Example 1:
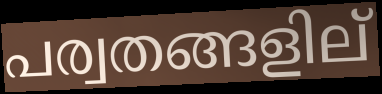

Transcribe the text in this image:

പര്വതങ്ങളില്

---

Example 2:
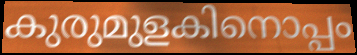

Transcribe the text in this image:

കുരുമുളകിനൊപ്പം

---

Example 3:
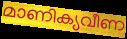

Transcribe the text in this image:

മാണിക്യവീണ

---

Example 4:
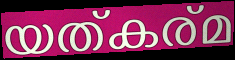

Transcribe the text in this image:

യത്കര്മ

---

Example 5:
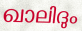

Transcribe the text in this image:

ഖാലിദും